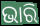
ଭାରି